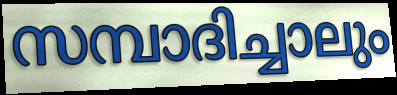
സമ്പാദിച്ചാലും